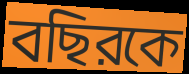
বছিরকে